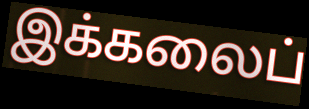
இக்கலைப்